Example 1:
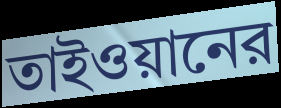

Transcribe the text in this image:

তাইওয়ানের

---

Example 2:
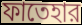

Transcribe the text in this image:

ফাতেহার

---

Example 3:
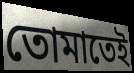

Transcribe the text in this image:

তোমাতেই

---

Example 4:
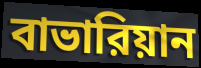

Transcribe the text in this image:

বাভারিয়ান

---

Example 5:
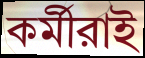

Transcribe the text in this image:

কর্মীরাই